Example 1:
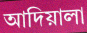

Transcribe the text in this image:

আদিয়ালা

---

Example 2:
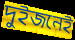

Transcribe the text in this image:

দুইজনেই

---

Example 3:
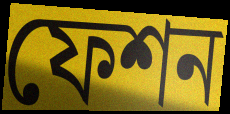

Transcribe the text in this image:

ফেশন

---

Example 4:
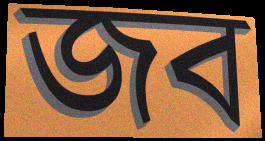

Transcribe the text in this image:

জব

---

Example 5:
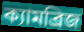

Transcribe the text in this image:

ক্যামব্রিজ